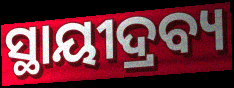
ସ୍ଥାୟୀଦ୍ରବ୍ୟ